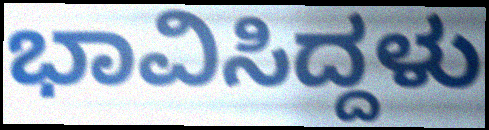
ಭಾವಿಸಿದ್ದಳು